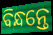
ବିନ୍ଧନ୍ତେ